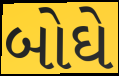
બોઘે